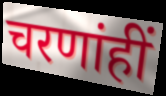
चरणांहीं